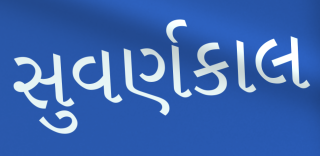
સુવર્ણકાલ